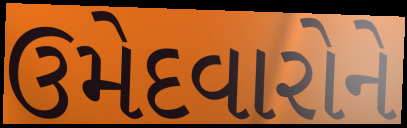
ઉમેદવારોને